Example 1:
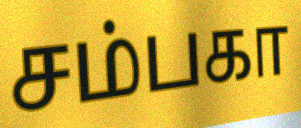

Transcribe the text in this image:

சம்பகா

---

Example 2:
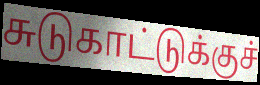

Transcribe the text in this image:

சுடுகாட்டுக்குச்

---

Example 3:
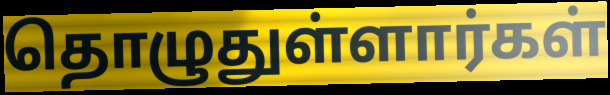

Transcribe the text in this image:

தொழுதுள்ளார்கள்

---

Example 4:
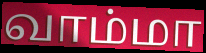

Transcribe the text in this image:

வாம்மா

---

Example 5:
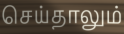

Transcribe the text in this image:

செய்தாலும்